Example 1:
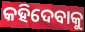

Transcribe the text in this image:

କହିଦେବାକୁ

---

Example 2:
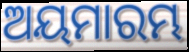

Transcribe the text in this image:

ଅୟମାରମ୍ଭ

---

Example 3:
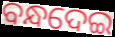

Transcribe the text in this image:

ବନ୍ଧଦେଇ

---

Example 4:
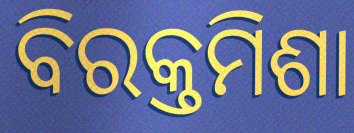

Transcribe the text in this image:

ବିରକ୍ତମିଶା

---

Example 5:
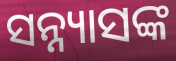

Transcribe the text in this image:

ସନ୍ନ୍ୟାସଙ୍କ